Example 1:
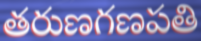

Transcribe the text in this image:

తరుణగణపతి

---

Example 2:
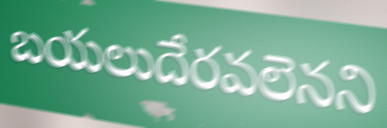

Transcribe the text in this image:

బయలుదేరవలెనని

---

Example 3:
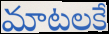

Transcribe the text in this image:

మాటలకే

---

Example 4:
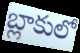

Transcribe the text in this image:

బ్లాకులో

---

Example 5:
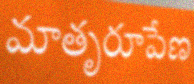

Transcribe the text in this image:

మాతృరూపేణ